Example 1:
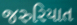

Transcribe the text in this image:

જરુરિયાત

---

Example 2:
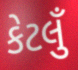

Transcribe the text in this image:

કેટલુઁ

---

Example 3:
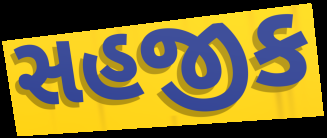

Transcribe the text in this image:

સહજીક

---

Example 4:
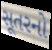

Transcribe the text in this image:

સૂતરનો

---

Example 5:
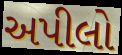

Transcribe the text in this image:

અપીલો